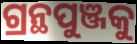
ଗ୍ରନ୍ଥପୁଞ୍ଜକୁ